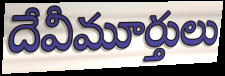
దేవీమూర్తులు